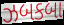
ઝબકબા